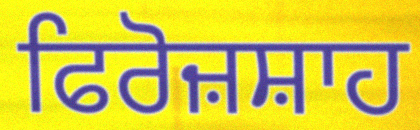
ਫਿਰੋਜ਼ਸ਼ਾਹ